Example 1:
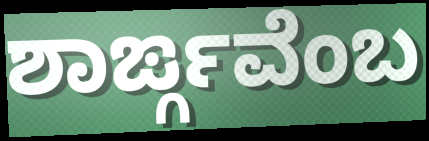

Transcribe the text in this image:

ಶಾರ್ಙ್ಗವೆಂಬ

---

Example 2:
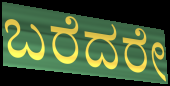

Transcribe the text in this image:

ಬರೆದರೇ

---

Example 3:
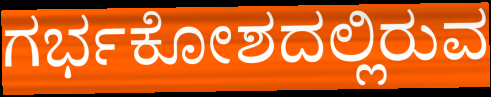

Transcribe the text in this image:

ಗರ್ಭಕೋಶದಲ್ಲಿರುವ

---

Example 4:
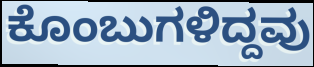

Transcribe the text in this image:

ಕೊಂಬುಗಳಿದ್ದವು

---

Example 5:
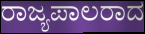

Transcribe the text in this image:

ರಾಜ್ಯಪಾಲರಾದ